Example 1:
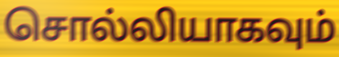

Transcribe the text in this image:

சொல்லியாகவும்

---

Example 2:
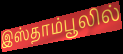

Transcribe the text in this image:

இஸ்தாம்பூலில்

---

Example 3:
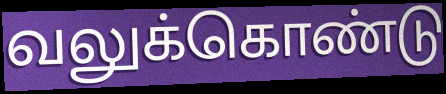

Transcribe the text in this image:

வலுக்கொண்டு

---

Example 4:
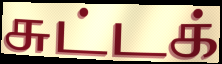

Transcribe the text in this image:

சுட்டக்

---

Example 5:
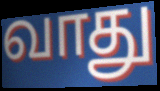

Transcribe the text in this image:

வாது